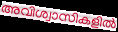
അവിശ്വാസികളിൽ